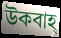
উকবাহ্